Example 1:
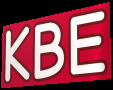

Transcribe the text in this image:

KBE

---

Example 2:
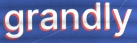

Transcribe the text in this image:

grandly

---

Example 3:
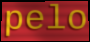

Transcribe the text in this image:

pelo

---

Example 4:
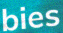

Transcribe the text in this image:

bies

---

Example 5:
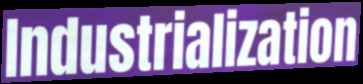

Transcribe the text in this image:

Industrialization